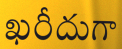
ఖరీదుగా